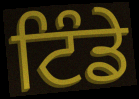
ਟਿੰਡੇ